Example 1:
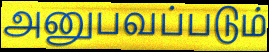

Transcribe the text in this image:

அனுபவப்படும்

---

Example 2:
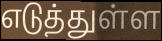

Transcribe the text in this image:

எடுத்துள்ள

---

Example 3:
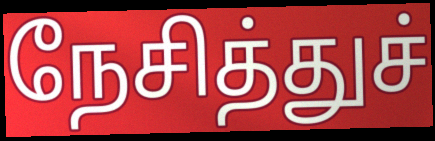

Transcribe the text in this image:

நேசித்துச்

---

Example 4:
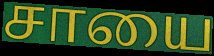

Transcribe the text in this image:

சாயை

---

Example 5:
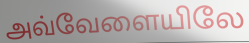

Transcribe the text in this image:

அவ்வேளையிலே